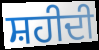
ਸ਼ਹੀਦੀ